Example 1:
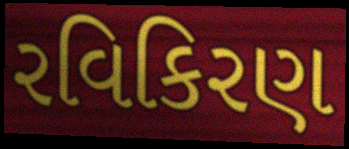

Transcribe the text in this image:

રવિકિરણ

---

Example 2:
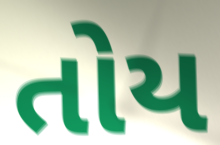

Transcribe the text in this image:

તોય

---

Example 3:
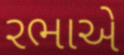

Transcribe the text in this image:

રભાએ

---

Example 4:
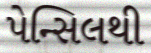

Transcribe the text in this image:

પેન્સિલથી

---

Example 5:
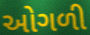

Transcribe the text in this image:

ઓગળી